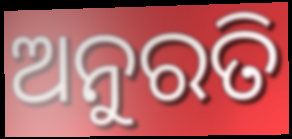
ଅନୁରତି